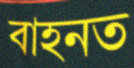
বাহনত